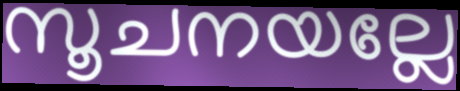
സൂചനയല്ലേ